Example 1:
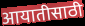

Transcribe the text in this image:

आयातीसाठी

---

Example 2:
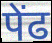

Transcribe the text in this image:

पेंढ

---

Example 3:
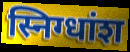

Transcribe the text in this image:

स्निग्धांश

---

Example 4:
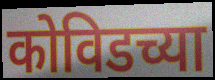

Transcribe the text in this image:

कोविडच्या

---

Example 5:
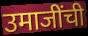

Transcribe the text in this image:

उमाजींची